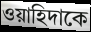
ওয়াহিদাকে